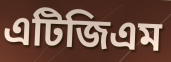
এটিজিএম